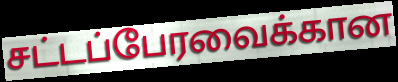
சட்டப்பேரவைக்கான